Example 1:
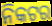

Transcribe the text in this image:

ନିକଟର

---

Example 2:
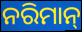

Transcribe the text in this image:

ନରିମାନ୍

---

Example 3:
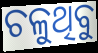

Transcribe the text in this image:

ଚଳୁଥିବୁ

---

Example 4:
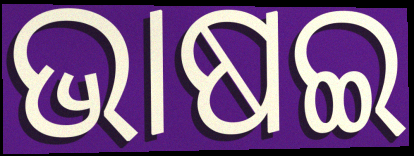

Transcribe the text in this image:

ଭାଷଇ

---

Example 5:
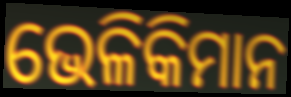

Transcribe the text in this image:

ଭେଳିକିମାନ